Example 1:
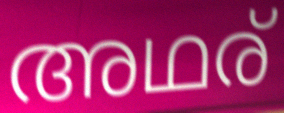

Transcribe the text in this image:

അഥര്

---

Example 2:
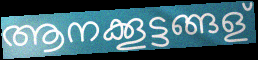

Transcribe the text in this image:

ആനക്കൂട്ടങ്ങള്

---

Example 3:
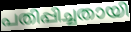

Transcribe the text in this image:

പതിപ്പിച്ചതായി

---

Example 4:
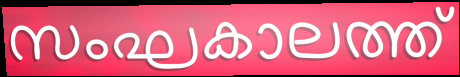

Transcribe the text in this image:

സംഘകാലത്ത്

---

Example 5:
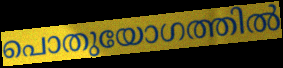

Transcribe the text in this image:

പൊതുയോഗത്തിൽ